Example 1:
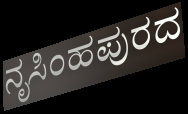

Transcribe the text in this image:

ನೃಸಿಂಹಪುರದ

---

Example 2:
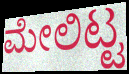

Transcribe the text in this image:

ಮೇಲಿಟ್ಟ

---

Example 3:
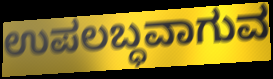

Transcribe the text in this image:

ಉಪಲಬ್ಧವಾಗುವ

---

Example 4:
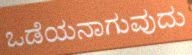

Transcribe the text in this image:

ಒಡೆಯನಾಗುವುದು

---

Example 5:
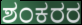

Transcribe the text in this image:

ಶಂಕರರ